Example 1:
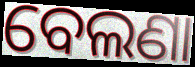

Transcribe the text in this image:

ବେଲଣା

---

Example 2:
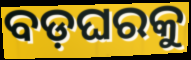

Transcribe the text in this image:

ବଡ଼ଘରକୁ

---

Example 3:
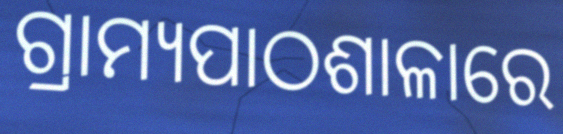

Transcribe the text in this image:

ଗ୍ରାମ୍ୟପାଠଶାଳାରେ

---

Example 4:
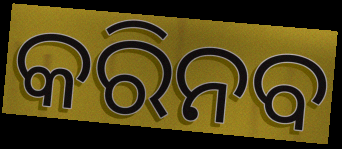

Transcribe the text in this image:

କରିନବ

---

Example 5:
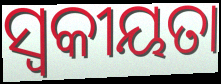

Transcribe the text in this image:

ସ୍ଵକୀୟତା